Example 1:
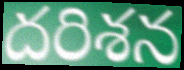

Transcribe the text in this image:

దరిశన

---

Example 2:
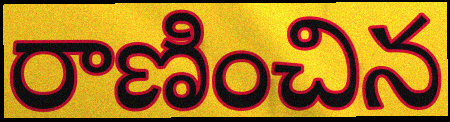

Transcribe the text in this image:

రాణించిన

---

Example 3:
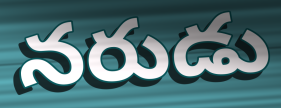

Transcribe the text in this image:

నరుడు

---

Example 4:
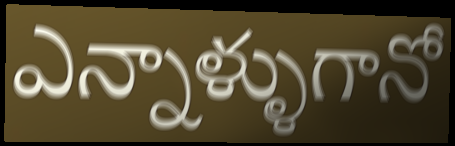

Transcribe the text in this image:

ఎన్నాళ్ళుగానో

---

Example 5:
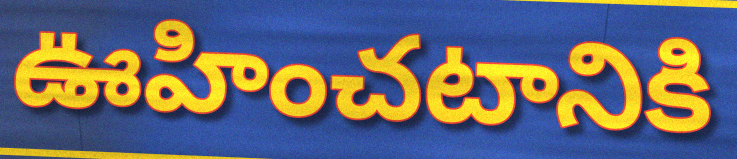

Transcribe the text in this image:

ఊహించటానికి